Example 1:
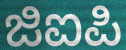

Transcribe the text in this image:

ಜಿಐಪಿ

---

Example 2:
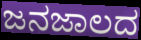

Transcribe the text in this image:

ಜನಜಾಲದ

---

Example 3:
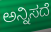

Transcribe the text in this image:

ಅನ್ನಿಸದೆ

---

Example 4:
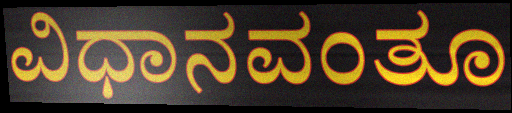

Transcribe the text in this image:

ವಿಧಾನವಂತೂ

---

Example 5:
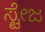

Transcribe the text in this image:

ಸ್ಟೇಜ